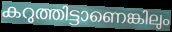
കറുത്തിട്ടാണെങ്കിലും